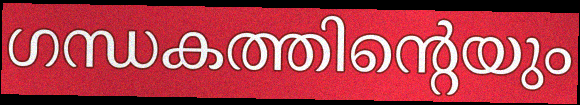
ഗന്ധകത്തിന്റെയും